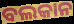
ବଲକାନ